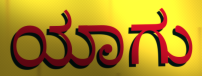
ಯಾಗು